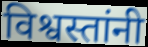
विश्वस्तांनी